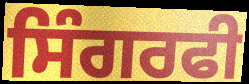
ਸਿੰਗਰਫੀ